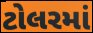
ટોલરમાં